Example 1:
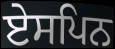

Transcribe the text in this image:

ਏਸਪਿਨ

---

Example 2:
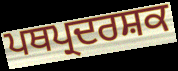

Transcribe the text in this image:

ਪਥਪ੍ਰਦਰਸ਼ਕ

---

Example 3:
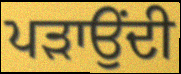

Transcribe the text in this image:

ਪੜਾਉਂਦੀ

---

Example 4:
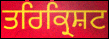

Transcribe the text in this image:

ਤਰਿਕ੍ਰਿਸ਼ਟ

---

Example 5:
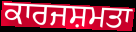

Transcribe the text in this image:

ਕਾਰਜਸ਼ਮਤਾ